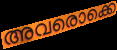
അവരൊക്കെ